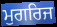
ਮੁਗਰਿਜ